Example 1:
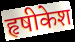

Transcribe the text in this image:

हृषीकेश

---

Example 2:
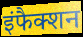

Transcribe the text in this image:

इंफैक्शन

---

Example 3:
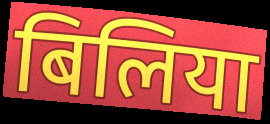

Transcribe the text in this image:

बिलिया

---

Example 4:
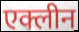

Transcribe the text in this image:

एक्लीन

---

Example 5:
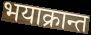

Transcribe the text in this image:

भयाक्रान्त